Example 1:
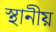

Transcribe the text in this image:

স্থানীয়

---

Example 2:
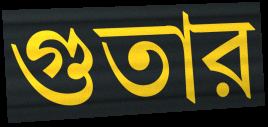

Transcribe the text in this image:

গুতার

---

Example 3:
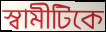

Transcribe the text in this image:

স্বামীটিকে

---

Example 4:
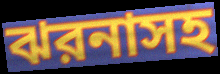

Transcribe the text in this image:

ঝরনাসহ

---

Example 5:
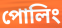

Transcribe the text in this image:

পোলিং